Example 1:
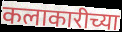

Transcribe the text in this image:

कलाकारीच्या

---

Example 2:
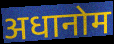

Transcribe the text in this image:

अधानोम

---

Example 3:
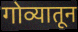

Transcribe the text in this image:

गोव्यातून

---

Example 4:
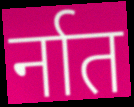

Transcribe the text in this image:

र्नात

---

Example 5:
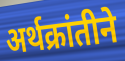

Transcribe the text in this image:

अर्थक्रांतीने